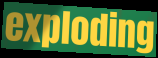
exploding